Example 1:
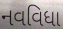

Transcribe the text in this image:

નવવિધા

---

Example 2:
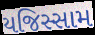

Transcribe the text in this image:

યજિસ્સામ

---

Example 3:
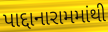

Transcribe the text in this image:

પાદ્દાનારામમાંથી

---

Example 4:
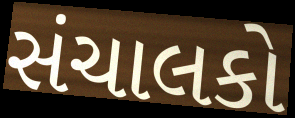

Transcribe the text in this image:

સંચાલકો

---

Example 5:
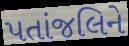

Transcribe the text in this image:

પતાંજલિને